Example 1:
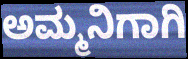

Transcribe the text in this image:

ಅಮ್ಮನಿಗಾಗಿ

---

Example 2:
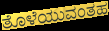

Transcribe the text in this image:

ತೊಳೆಯುವಂತಹ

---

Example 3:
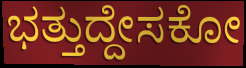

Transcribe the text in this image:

ಭತ್ತುದ್ದೇಸಕೋ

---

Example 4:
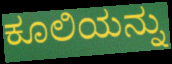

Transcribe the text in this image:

ಕೂಲಿಯನ್ನು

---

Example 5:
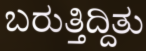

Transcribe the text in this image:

ಬರುತ್ತಿದ್ದಿತು